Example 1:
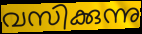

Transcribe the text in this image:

വസിക്കുന്നു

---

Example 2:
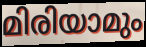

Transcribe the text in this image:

മിരിയാമും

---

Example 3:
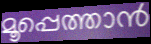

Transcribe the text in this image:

മൂപ്പെത്താൻ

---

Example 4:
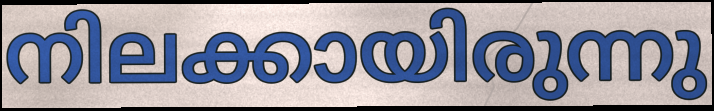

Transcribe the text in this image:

നിലക്കായിരുന്നു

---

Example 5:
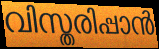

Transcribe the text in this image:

വിസ്തരിപ്പാൻ